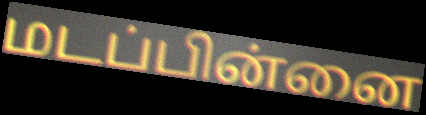
மடப்பின்னை